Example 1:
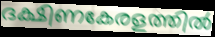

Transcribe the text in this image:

ദക്ഷിണകേരളത്തിൽ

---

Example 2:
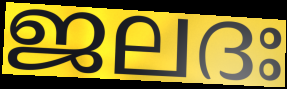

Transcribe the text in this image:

ജലദഃ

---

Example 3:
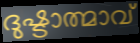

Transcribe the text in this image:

ദുഷ്ടാത്മാവ്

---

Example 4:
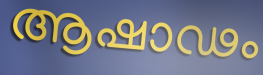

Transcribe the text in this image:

ആഷാഢം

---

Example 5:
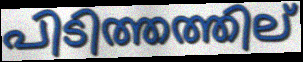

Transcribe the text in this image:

പിടിത്തത്തില്